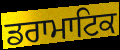
ਡਰਾਮਾਟਿਕ